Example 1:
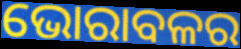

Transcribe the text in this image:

ଭୋରାବଳର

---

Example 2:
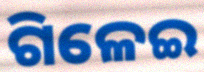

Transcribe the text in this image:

ଗିଳେଇ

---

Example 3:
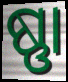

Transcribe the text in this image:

ଷ୍ଣା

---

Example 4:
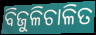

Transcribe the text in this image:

ବିଜୁଳିଚାଳିତ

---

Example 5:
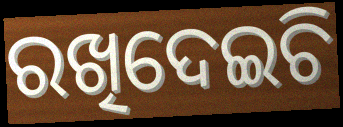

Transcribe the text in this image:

ରଖିଦେଇଚି